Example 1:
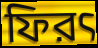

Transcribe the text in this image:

ফিরৎ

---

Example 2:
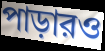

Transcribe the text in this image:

পাড়ারও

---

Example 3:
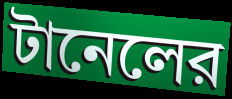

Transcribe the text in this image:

টানেলের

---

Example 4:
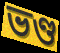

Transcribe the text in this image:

ভণ্ড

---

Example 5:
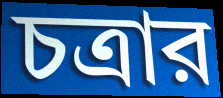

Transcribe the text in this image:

চত্রার